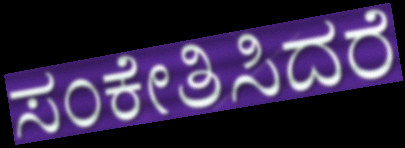
ಸಂಕೇತಿಸಿದರೆ